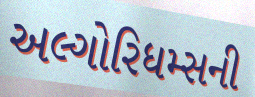
અલ્ગોરિધમ્સની